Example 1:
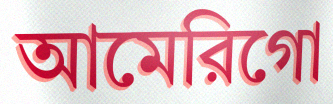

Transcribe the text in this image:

আমেরিগো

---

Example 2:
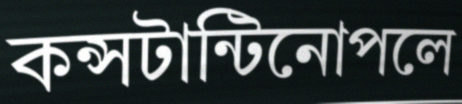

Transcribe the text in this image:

কন্সটান্টিনোপলে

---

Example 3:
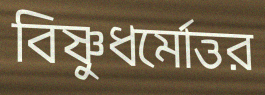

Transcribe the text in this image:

বিষ্ণুধর্মোত্তর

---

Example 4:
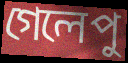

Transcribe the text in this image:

গেলেপু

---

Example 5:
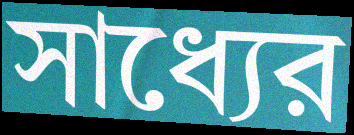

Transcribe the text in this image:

সাধ্যের